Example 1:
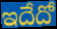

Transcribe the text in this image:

ఇదేదో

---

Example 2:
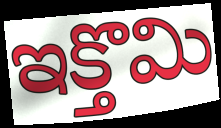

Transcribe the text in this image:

ఇక్తొమి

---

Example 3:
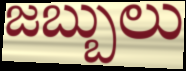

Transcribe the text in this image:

జబ్బులు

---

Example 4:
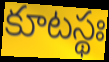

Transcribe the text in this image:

కూటస్థః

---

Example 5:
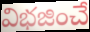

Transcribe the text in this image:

విభజించే